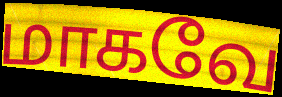
மாகவே